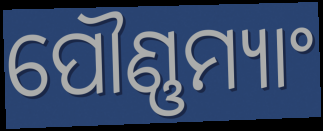
ପୌଣ୍ଣମ୍ୟାଂ